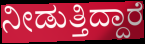
ನೀಡುತ್ತಿದ್ದಾರೆ